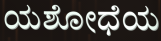
ಯಶೋಧೆಯ